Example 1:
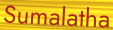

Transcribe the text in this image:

Sumalatha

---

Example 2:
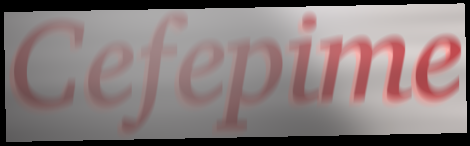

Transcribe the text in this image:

Cefepime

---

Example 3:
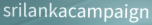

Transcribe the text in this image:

srilankacampaign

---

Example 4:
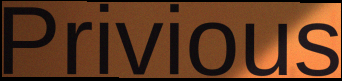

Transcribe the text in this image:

Privious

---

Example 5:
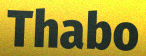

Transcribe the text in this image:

Thabo